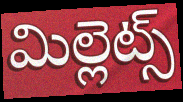
మిల్లెట్స్